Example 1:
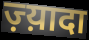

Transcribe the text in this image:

ज़्य़ादा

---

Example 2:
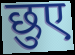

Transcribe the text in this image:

छुए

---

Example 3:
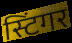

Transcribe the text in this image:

स्टिंगर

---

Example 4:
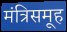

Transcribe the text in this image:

मंत्रिसमूह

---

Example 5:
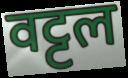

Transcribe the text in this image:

वट्टल